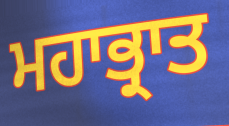
ਮਹਾਭ੍ਰਾਤ